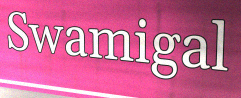
Swamigal